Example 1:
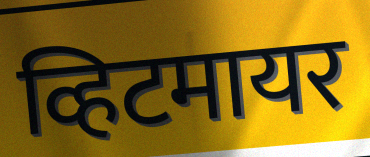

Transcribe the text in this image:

व्हिटमायर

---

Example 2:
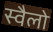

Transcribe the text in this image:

स्वैलो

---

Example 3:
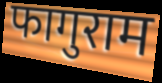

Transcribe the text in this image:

फागुराम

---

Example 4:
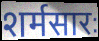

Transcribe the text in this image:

शर्मसारः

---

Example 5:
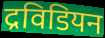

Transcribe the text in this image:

द्रविडियन